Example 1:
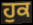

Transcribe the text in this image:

ਹੁਕ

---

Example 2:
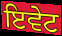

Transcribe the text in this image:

ਇਵੇਟ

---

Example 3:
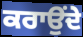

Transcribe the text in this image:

ਕਰਾਉਂਦੇ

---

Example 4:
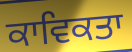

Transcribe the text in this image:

ਕਾਵਿਕਤਾ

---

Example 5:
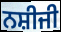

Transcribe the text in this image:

ਨਸ਼ੀਜੀ